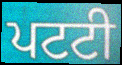
ਪਟਟੀ